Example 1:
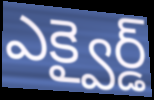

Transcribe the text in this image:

ఎక్వైర్డ్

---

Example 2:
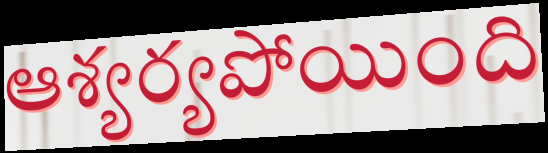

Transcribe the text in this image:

ఆశ్యర్యపోయింది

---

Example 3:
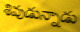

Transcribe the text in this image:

శివుడున్నాడు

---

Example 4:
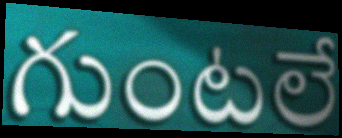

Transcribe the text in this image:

గుంటలే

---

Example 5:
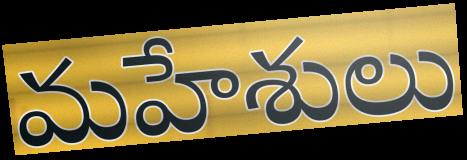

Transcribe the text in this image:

మహేశులు